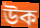
উক